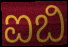
ಐಬಿ